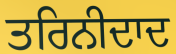
ਤਰਿਨੀਦਾਦ